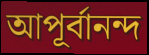
আপূর্বানন্দ